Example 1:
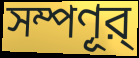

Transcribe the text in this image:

সম্পণূর্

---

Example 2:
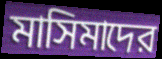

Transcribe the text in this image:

মাসিমাদের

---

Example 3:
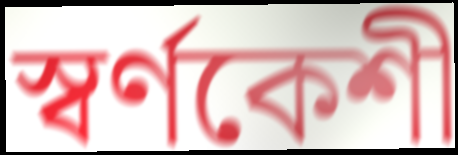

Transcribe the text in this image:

স্বর্ণকেশী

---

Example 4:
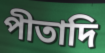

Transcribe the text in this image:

পীতাদি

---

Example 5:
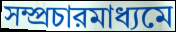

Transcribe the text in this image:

সম্প্রচারমাধ্যমে